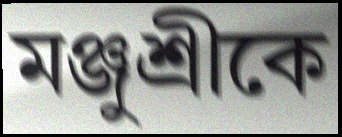
মঞ্জুশ্রীকে